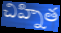
చిహ్నిత